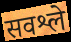
सवश्ले